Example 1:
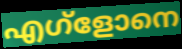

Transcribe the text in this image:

എഗ്ളോനെ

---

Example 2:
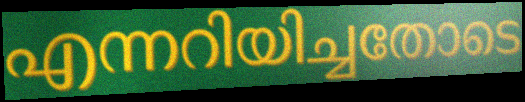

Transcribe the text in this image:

എന്നറിയിച്ചതോടെ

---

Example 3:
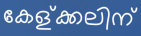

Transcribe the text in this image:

കേള്ക്കലിന്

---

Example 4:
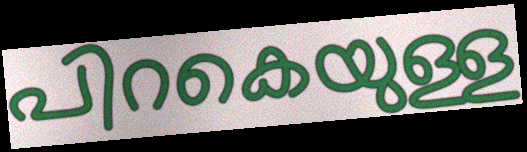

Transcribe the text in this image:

പിറകെയുള്ള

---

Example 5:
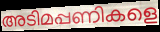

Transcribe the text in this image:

അടിമപ്പണികളെ